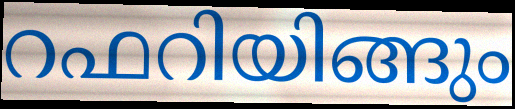
റഫറിയിങ്ങും